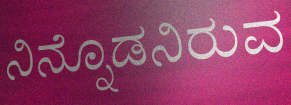
ನಿನ್ನೊಡನಿರುವ